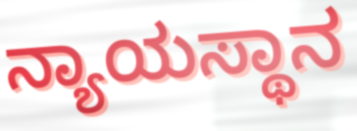
ನ್ಯಾಯಸ್ಥಾನ